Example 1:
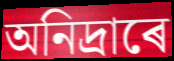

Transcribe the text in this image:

অনিদ্ৰাৰে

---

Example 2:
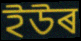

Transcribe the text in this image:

ইউৰ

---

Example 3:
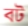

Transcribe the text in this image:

বট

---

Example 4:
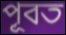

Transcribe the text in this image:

পূবত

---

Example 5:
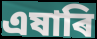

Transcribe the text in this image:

এষাৰি